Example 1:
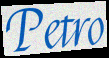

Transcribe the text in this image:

Petro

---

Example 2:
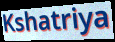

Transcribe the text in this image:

Kshatriya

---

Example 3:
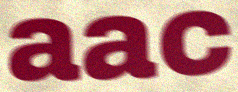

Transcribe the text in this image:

aac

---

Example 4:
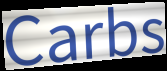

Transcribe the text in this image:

Carbs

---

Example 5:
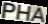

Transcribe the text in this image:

PHA